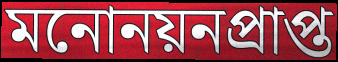
মনোনয়নপ্রাপ্ত